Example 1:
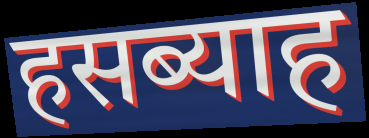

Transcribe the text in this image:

हसब्याह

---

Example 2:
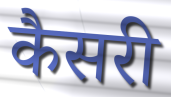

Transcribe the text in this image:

कैसरी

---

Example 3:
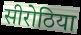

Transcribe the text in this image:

सीरोठिया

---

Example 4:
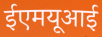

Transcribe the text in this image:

ईएमयूआई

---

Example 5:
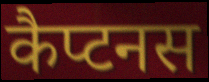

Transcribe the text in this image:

कैप्टनस